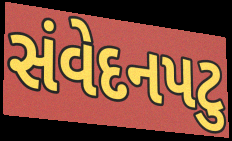
સંવેદનપટુ